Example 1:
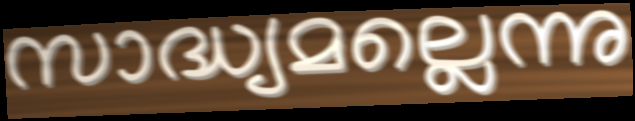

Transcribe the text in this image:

സാദ്ധ്യമല്ലെന്നു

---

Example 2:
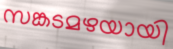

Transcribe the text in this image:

സങ്കടമഴയായി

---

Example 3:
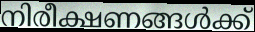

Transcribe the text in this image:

നിരീക്ഷണങ്ങൾക്ക്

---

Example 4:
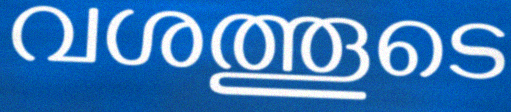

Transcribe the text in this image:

വശത്തൂടെ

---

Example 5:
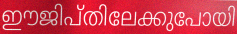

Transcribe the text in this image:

ഈജിപ്തിലേക്കുപോയി